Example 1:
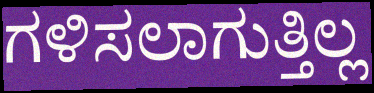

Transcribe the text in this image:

ಗಳಿಸಲಾಗುತ್ತಿಲ್ಲ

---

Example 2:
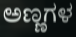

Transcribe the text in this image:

ಅಣ್ಣಗಳ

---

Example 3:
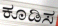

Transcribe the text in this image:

ಕೂಡಿಸ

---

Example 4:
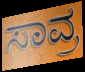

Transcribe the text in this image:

ಸಾವ್ರ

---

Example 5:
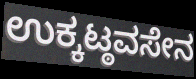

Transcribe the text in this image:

ಉಕ್ಕಟ್ಠವಸೇನ